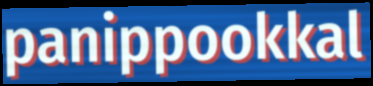
panippookkal